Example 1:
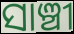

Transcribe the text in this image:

ସାଞ୍ଚୀ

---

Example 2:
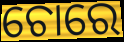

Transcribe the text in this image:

ଚୋରେ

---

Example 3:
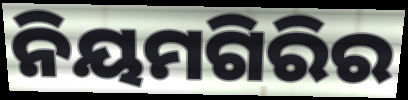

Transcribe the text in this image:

ନିୟମଗିରିର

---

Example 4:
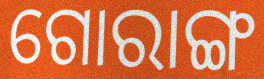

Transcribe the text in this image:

ଗୋରାଙ୍ଗ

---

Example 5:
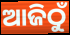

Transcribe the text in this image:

ଆଜିଠୁଁ